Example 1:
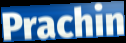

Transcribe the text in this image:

Prachin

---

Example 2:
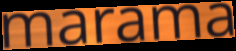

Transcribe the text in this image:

marama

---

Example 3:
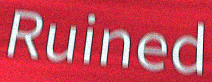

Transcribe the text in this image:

Ruined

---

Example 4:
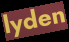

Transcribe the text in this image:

lyden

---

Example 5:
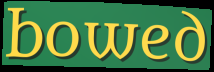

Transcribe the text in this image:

bowed